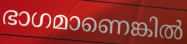
ഭാഗമാണെങ്കിൽ